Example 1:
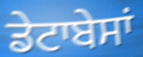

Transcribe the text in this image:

ਡੇਟਾਬੇਸਾਂ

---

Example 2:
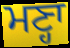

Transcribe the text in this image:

ਮਣ੍ਹਾ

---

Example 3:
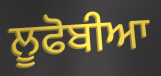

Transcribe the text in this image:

ਲੂਫੋਬੀਆ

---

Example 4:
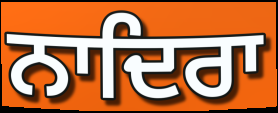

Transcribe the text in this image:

ਨਾਦਿਰਾ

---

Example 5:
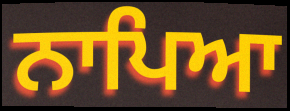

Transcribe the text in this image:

ਨਾਪਿਆ